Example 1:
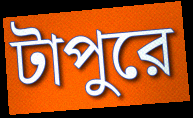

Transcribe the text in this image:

টাপুরে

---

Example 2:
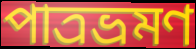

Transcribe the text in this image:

পাত্রভ্রমণ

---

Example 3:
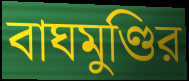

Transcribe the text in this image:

বাঘমুণ্ডির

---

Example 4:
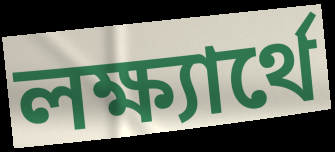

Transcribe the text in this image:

লক্ষ্যার্থে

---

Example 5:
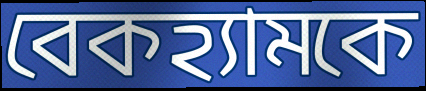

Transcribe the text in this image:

বেকহ্যামকে